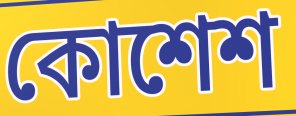
কোশেশ